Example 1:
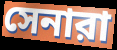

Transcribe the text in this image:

সেনারা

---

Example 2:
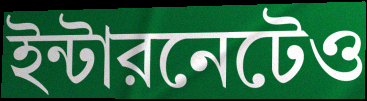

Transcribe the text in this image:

ইন্টারনেটেও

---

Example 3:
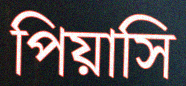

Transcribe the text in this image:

পিয়াসি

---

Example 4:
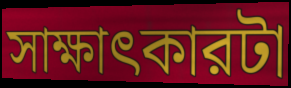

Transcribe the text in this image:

সাক্ষাৎকারটা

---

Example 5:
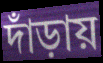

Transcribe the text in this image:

দাঁড়ায়